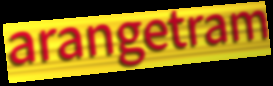
arangetram